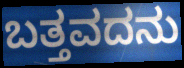
ಬತ್ತವದನು